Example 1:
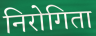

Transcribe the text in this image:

निरोगिता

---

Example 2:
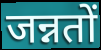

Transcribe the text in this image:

जन्नतों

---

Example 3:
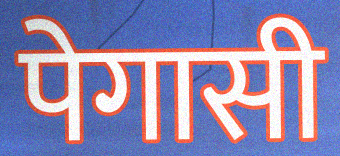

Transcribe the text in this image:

पेगासी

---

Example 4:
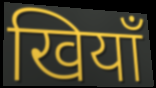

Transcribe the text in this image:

खियाँ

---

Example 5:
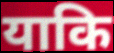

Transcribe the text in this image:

याकि